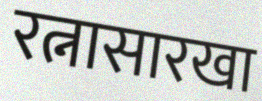
रत्नासारखा